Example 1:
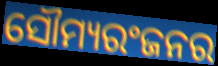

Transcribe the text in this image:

ସୌମ୍ୟରଂଜନର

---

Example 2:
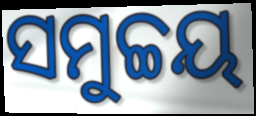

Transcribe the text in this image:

ସମୁଚ୍ଚୟ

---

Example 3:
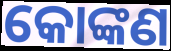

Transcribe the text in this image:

କୋଙ୍କଣ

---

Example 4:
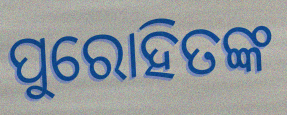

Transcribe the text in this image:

ପୁରୋହିତଙ୍କ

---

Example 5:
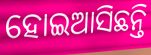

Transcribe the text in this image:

ହୋଇଆସିଛନ୍ତି